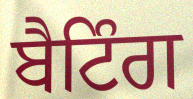
ਬੈਟਿੰਗ